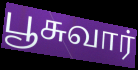
பூசுவார்